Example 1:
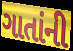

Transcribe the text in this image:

ગાતાંની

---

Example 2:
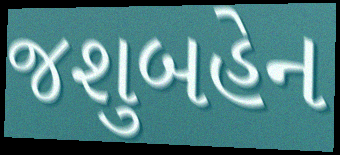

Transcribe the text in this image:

જશુબહેન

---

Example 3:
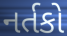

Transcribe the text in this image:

નર્તકો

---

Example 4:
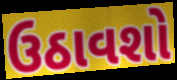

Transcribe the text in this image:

ઉઠાવશો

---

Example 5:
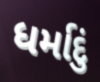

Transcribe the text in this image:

ધર્માદું